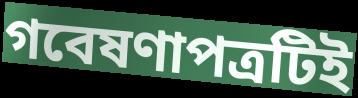
গবেষণাপত্রটিই